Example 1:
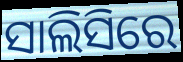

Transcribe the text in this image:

ସାଲିସିରେ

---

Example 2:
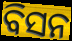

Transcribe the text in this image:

ବିସନ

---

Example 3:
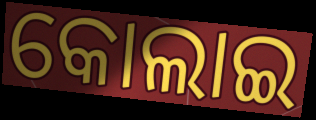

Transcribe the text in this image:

କୋଲାଇ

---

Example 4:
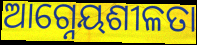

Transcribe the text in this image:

ଆଗ୍ନେୟଶୀଳତା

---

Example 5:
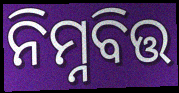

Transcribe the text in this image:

ନିମ୍ନବିତ୍ତ